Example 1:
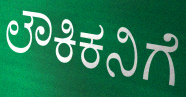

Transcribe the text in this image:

ಲೌಕಿಕನಿಗೆ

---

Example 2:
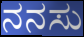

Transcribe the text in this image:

ನನಸು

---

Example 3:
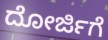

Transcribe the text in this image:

ದೋರ್ಜಿಗೆ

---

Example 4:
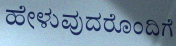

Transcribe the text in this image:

ಹೇಳುವುದರೊಂದಿಗೆ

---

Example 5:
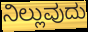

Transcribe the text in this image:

ನಿಲ್ಲುವುದು